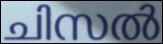
ചിസൽ